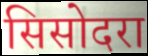
सिसोदरा